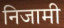
निजामी